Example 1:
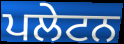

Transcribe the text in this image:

ਪਲੇਟਨ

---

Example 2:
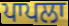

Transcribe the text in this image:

ਪਾਪਲਾ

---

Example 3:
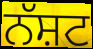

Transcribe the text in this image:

ਨੱਸ਼ਟ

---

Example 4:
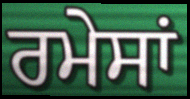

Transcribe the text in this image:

ਰਮੇਸਾਂ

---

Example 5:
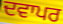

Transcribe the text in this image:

ਦਵਾਪਰ